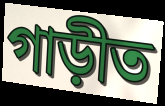
গাড়ীত